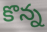
కొన్న